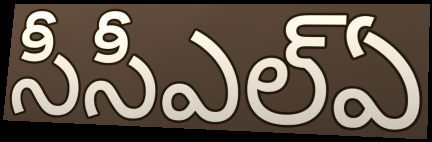
సీసీఎల్ఏ